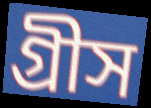
গ্রীস